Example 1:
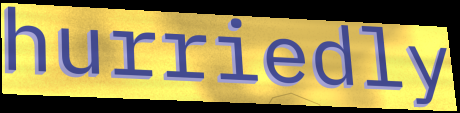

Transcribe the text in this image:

hurriedly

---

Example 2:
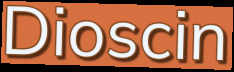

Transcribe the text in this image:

Dioscin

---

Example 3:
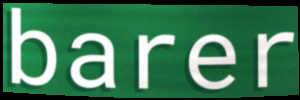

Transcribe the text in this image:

barer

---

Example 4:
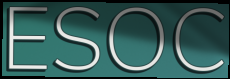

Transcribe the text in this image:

ESOC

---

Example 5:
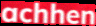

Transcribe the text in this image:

achhen